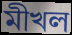
মীখল